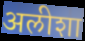
अलीशा